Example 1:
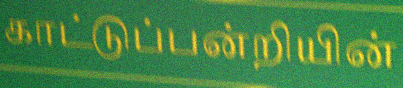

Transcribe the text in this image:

காட்டுப்பன்றியின்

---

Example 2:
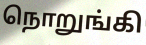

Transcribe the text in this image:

நொறுங்கி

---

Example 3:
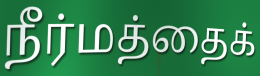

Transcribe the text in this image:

நீர்மத்தைக்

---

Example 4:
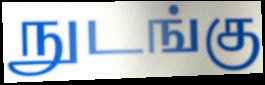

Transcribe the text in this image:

நுடங்கு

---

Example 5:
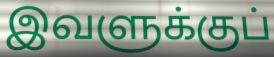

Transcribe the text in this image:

இவளுக்குப்